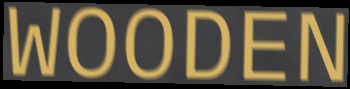
WOODEN